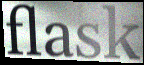
flask